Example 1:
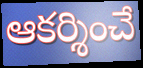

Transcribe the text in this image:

ఆకర్శించే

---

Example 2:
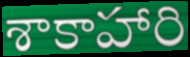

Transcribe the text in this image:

శాకాహారి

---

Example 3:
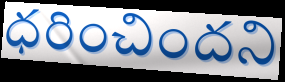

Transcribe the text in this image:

ధరించిందని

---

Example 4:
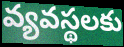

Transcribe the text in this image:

వ్యవస్థలకు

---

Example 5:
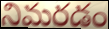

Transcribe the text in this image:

నిమరడం